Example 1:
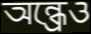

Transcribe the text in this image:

অন্ধ্রেও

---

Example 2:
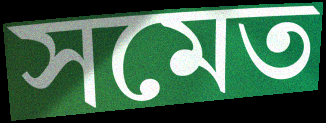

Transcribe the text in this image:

সমেত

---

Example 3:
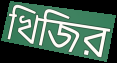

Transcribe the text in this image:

খিজির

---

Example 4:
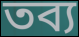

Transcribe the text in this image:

তব্য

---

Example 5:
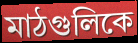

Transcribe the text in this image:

মাঠগুলিকে